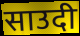
साउदी